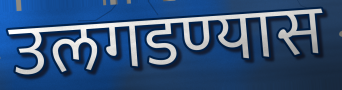
उलगडण्यास